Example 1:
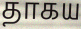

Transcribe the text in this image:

தாகய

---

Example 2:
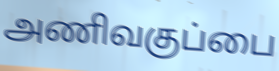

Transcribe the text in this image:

அணிவகுப்பை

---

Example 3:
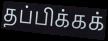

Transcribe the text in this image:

தப்பிக்கக்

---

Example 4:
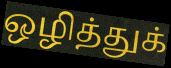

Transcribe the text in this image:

ஒழித்துக்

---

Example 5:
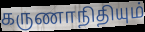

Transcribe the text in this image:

கருணாநிதியும்